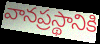
వానప్రస్థానికి